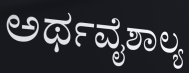
ಅರ್ಥವೈಶಾಲ್ಯ